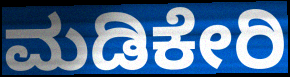
ಮಡಿಕೇರಿ